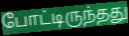
போட்டிருந்தது